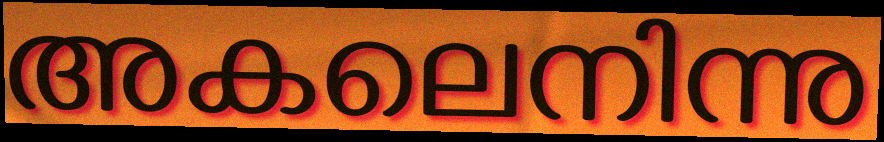
അകലെനിന്നു